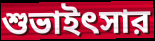
শুভাইৎসার